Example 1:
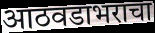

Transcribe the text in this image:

आठवडाभराचा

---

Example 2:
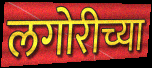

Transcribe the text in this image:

लगोरीच्या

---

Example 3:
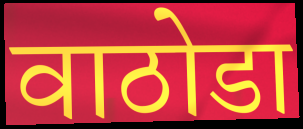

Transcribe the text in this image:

वाठोडा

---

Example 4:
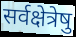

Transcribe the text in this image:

सर्वक्षेत्रेषु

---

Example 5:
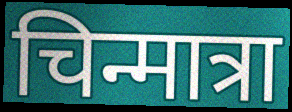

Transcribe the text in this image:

चिन्मात्रा